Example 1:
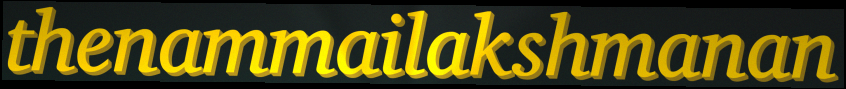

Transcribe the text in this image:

thenammailakshmanan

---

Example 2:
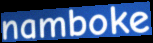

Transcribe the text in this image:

namboke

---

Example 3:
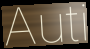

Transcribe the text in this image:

Auti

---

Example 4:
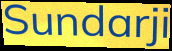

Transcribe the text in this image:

Sundarji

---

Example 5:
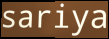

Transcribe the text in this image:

sariya